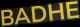
BADHE